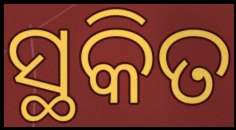
ସ୍ଥକିତ